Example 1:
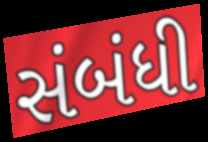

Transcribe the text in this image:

સંબંધી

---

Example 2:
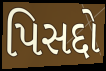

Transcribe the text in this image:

પિસદ્દો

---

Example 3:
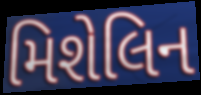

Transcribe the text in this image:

મિશેલિન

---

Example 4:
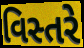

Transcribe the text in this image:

વિસ્તરે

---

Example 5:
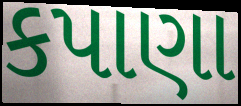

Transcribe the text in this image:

કપાણા